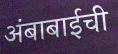
अंबाबाईची